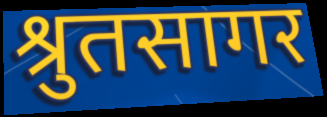
श्रुतसागर